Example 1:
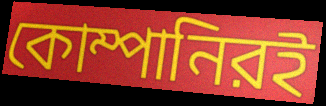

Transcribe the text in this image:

কোম্পানিরই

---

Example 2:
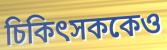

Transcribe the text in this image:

চিকিৎসককেও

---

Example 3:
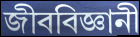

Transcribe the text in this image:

জীববিজ্ঞানী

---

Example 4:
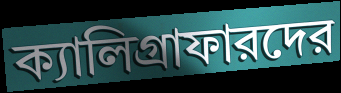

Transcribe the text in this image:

ক্যালিগ্রাফারদের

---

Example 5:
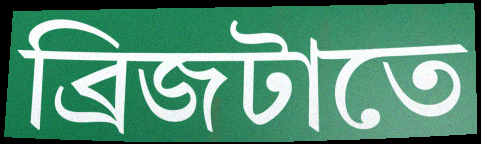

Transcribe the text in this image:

ব্রিজটাতে